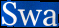
Swa